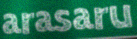
arasaru